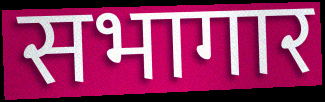
सभागार